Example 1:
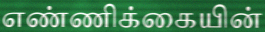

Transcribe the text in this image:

எண்ணிக்கையின்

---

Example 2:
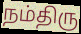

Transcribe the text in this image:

நம்திரு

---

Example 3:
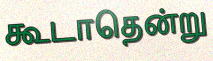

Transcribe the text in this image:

கூடாதென்று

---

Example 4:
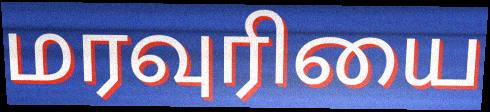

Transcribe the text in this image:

மரவுரியை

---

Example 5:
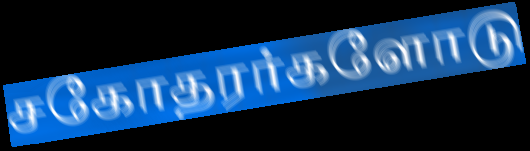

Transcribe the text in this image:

சகோதரர்களோடு